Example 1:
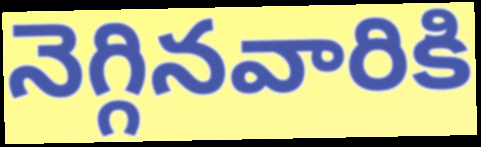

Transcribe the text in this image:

నెగ్గినవారికి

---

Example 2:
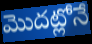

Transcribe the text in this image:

మొదట్లోనే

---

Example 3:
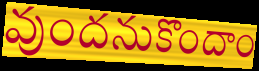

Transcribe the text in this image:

వుందనుకొందాం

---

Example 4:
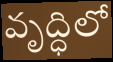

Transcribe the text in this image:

వృద్ధిలో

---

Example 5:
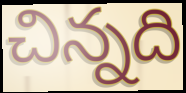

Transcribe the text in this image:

చిన్నది